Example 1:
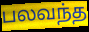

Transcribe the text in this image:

பலவந்த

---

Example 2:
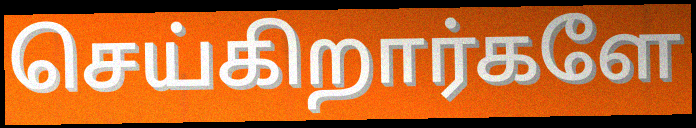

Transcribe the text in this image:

செய்கிறார்களே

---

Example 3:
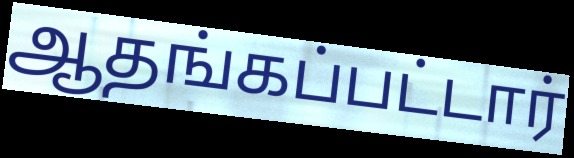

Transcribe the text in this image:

ஆதங்கப்பட்டார்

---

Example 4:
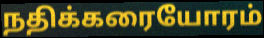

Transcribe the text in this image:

நதிக்கரையோரம்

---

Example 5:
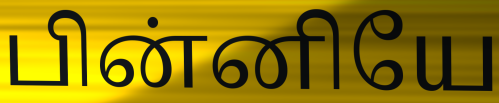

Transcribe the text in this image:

பின்னியே